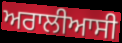
ਅਰਾਲੀਆਸੀ